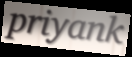
priyank